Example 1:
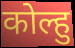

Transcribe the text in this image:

कोल्हु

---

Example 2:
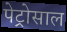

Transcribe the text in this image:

पेट्रोसाल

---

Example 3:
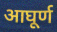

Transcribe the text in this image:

आघूर्ण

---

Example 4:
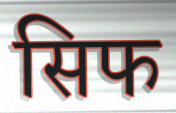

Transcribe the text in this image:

सिफ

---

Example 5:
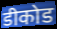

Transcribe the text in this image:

डीकोड